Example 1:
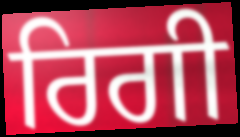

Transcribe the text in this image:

ਰਿਗੀ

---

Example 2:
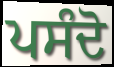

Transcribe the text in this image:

ਪਸੰਦੋ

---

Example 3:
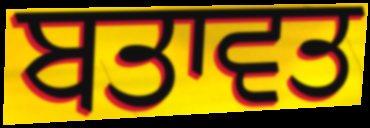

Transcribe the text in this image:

ਬਤਾਵਤ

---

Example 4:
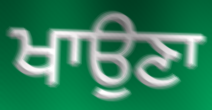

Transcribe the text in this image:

ਖਾਉਣਾ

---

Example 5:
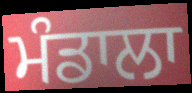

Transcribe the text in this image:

ਮੰਡਾਲਾ